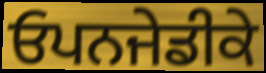
ਓਪਨਜੇਡੀਕੇ